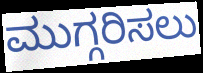
ಮುಗ್ಗರಿಸಲು